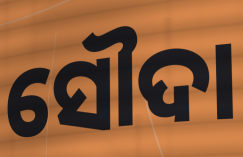
ସୌଦା